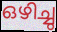
ഒഴിച്ചു